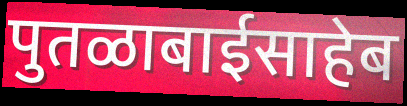
पुतळाबाईसाहेब